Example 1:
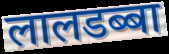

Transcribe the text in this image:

लालडब्बा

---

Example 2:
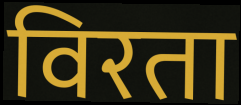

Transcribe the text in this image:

विरता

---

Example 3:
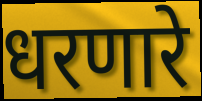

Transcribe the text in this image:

धरणारे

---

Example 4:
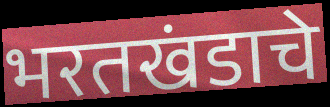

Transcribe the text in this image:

भरतखंडाचे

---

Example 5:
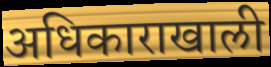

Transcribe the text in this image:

अधिकाराखाली